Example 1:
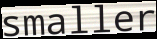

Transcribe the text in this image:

smaller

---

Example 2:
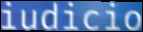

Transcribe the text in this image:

iudicio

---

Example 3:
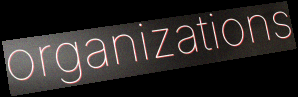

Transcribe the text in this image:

organizations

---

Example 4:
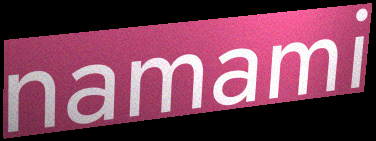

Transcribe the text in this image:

namami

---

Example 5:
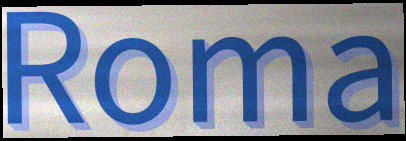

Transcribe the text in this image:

Roma